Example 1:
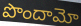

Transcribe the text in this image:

పొందామో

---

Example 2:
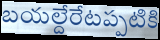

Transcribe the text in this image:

బయల్దేరేటప్పటికి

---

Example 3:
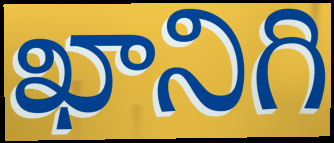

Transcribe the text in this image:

ఖానిగి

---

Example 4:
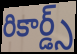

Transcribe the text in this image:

రికార్డ్స్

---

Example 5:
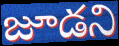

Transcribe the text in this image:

జూడని